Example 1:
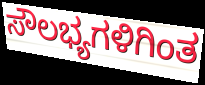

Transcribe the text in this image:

ಸೌಲಭ್ಯಗಳಿಗಿಂತ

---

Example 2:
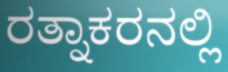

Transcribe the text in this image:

ರತ್ನಾಕರನಲ್ಲಿ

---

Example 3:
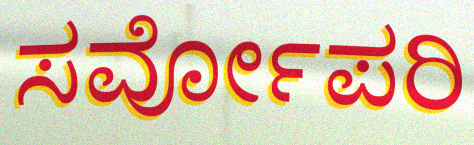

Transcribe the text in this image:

ಸರ್ವೋಪರಿ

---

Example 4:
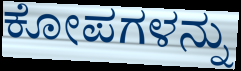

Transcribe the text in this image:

ಕೋಪಗಳನ್ನು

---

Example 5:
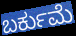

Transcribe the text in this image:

ಬರ್ಕುಮೆ